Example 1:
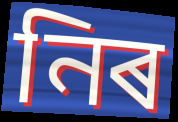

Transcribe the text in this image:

নিৰ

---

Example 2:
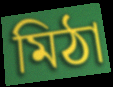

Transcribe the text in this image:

মিঠা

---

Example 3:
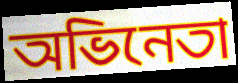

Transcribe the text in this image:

অভিনেতা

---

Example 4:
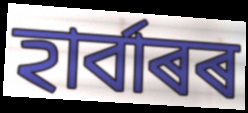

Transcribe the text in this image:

হাৰ্বাৰৰ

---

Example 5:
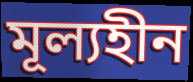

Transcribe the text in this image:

মূল্যহীন